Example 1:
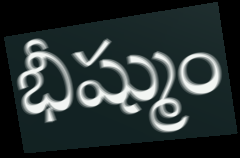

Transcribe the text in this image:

భీష్ముం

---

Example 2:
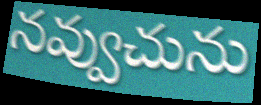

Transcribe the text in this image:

నవ్వుచును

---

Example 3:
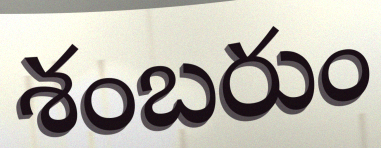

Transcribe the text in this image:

శంబరుం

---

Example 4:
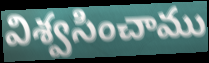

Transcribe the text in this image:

విశ్వసించాము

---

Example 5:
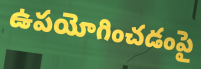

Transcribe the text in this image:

ఉపయోగించడంపై